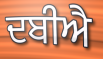
ਦਬੀਐ